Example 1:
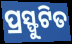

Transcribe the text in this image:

ପ୍ରସ୍ଫୁଟିତ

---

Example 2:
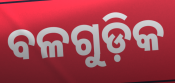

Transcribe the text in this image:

ବଳଗୁଡ଼ିକ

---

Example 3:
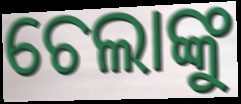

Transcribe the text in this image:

ଚେଲାଙ୍କୁ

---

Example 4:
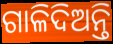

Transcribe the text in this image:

ଗାଳିଦିଅନ୍ତି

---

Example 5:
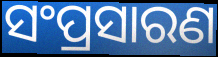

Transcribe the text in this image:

ସଂପ୍ରସାରଣ